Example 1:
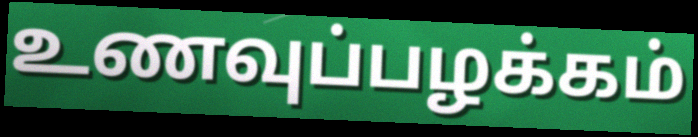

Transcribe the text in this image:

உணவுப்பழக்கம்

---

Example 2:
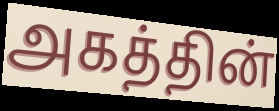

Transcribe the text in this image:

அகத்தின்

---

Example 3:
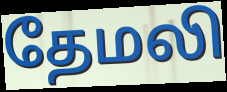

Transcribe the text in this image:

தேமலி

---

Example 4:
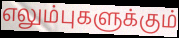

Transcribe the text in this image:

எலும்புகளுக்கும்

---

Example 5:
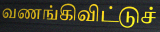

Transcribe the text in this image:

வணங்கிவிட்டுச்